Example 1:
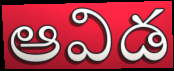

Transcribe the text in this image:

ఆవిడ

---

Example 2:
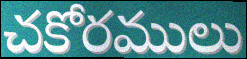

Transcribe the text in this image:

చకోరములు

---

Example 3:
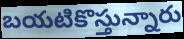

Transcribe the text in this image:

బయటికొస్తున్నారు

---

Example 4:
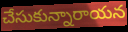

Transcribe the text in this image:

చేసుకున్నారాయన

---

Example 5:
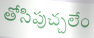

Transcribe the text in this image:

తోసిపుచ్చలేం